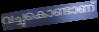
വച്ചുകൊണ്ടാണ്